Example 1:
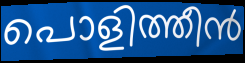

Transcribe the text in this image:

പൊളിത്തീൻ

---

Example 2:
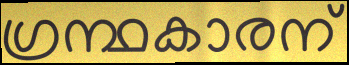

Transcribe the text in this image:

ഗ്രന്ഥകാരന്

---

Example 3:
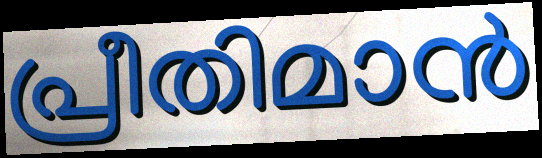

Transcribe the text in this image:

പ്രീതിമാൻ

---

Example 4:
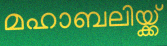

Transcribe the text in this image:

മഹാബലിയ്ക്ക്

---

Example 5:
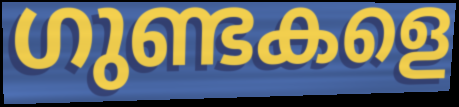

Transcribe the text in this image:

ഗുണ്ടകളെ